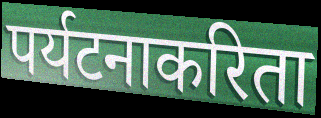
पर्यटनाकरिता